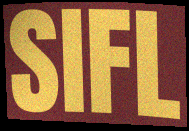
SIFL